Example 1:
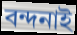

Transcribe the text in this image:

বন্দনাই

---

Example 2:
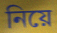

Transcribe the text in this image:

নিয়ে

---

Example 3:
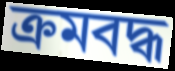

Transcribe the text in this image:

ক্ৰমবদ্ধ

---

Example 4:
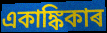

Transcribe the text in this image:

একাঙ্কিকাৰ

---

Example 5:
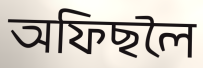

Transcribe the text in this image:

অফিছলৈ